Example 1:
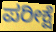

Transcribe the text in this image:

ಪರೀಕ್ಷೆ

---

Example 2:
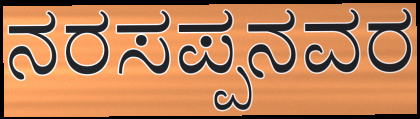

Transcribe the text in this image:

ನರಸಪ್ಪನವರ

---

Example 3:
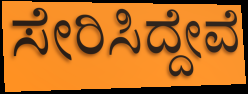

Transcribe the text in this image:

ಸೇರಿಸಿದ್ದೇವೆ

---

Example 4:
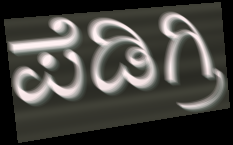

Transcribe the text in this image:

ಪೆಡಿಗ್ರಿ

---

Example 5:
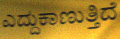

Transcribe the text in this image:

ಎದ್ದುಕಾಣುತ್ತಿದೆ